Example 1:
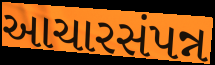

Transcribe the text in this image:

આચારસંપન્ન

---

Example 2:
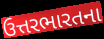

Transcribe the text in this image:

ઉત્તરભારતના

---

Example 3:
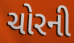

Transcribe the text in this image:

ચોરની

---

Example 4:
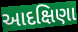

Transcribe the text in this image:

આદક્ષિણા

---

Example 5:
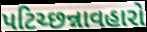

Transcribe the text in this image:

પટિચ્છન્નાવહારો